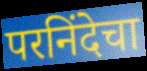
परनिंदेचा